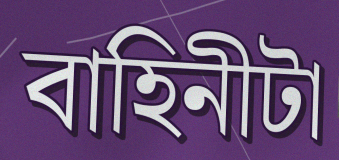
বাহিনীটা